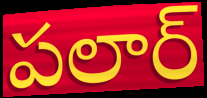
పలార్